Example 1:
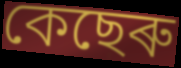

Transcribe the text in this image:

কেছেৰু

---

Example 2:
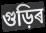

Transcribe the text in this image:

গুড়িৰ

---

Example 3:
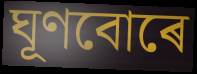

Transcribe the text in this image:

ঘূণবোৰে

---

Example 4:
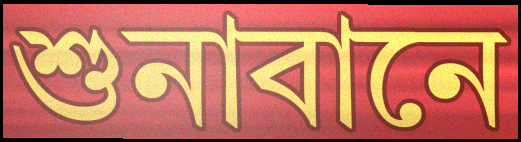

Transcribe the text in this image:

শুনাবানে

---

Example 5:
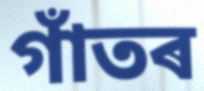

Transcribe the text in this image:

গাঁতৰ